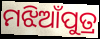
ମଝିଆଁପୁତ୍ର